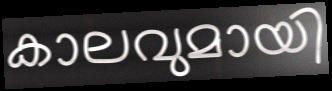
കാലവുമായി